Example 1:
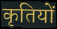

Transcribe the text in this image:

कृतियों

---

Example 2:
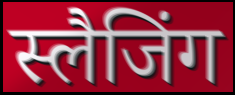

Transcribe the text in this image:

स्लैजिंग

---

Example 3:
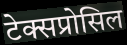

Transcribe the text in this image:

टेक्सप्रोसिल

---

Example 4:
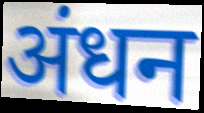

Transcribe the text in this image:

अंधन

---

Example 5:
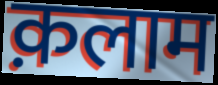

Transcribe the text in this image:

क़लाम